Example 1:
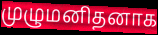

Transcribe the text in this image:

முழுமனிதனாக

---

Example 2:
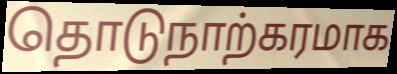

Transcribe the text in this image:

தொடுநாற்கரமாக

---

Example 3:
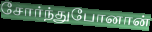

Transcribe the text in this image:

சோர்ந்துபோனான்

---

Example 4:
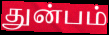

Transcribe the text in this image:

துன்பம்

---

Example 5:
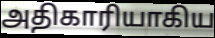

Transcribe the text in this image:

அதிகாரியாகிய